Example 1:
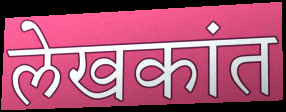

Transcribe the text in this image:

लेखकांत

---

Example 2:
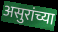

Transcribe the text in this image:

असुरांच्या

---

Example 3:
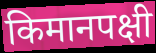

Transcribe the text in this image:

किमानपक्षी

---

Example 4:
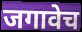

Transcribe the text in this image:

जगावेच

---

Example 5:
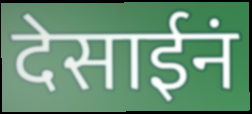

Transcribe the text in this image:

देसाईनं